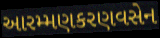
આરમ્મણકરણવસેન